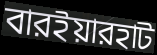
বারইয়ারহাট